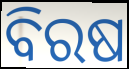
ବିରଷ